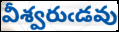
వీశ్వరుఁడవు